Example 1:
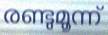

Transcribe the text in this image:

രണ്ടുമൂന്ന്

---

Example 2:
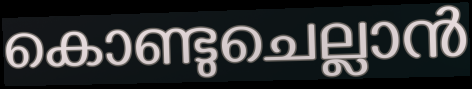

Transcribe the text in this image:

കൊണ്ടുചെല്ലാൻ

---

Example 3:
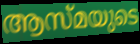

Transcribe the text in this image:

ആസ്മയുടെ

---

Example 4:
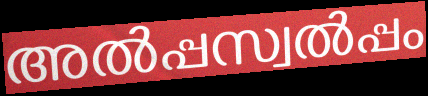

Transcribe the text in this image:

അൽപ്പസ്വൽപ്പം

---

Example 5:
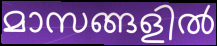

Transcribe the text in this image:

മാസങ്ങളിൽ